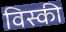
विस्की